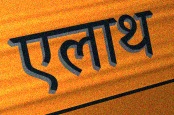
एलाथ